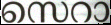
സെറാ